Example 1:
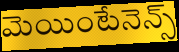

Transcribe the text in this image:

మెయింటేనెన్స్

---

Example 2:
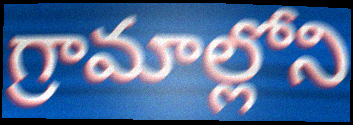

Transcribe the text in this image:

గ్రామాల్లోని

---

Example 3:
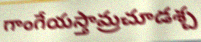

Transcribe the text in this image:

గాంగేయస్తామ్రచూడశ్చ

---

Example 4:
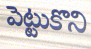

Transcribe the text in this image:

పెట్టుకొని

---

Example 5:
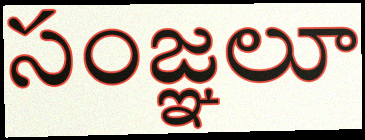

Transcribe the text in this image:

సంజ్ఞలూ